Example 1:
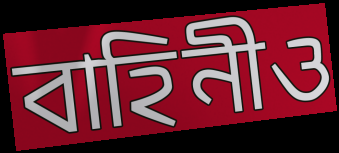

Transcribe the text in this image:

বাহিনীও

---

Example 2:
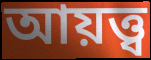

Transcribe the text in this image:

আয়ত্ত্ব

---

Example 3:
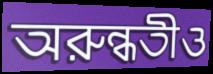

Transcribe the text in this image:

অরুন্ধতীও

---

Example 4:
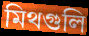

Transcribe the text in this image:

মিথগুলি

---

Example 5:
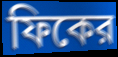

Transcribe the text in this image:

ফিকের